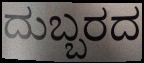
ದುಬ್ಬರದ